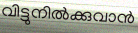
വിട്ടുനിൽക്കുവാൻ